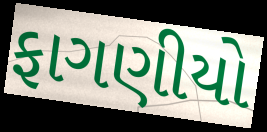
ફાગણીયો